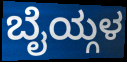
ಬೈಯ್ಗಳ